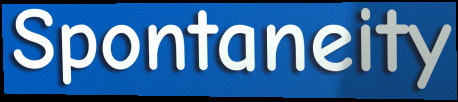
Spontaneity